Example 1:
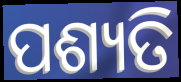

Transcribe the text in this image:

ପଶ୍ୟତି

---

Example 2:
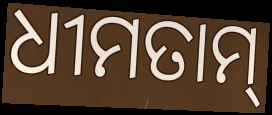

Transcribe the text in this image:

ଧୀମତାମ୍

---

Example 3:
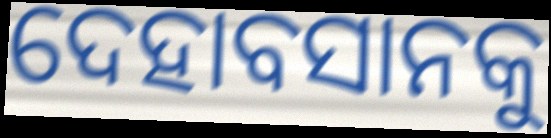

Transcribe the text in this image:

ଦେହାବସାନକୁ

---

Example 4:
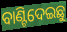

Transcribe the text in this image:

ବାଣ୍ଟିଦେଇଛୁ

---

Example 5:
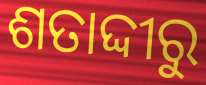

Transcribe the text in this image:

ଶତାଦ୍ଦୀରୁ